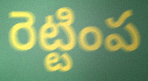
రెట్టింప